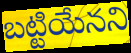
బట్టియేనని